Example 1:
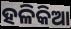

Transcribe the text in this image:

ହଳିକିଆ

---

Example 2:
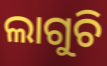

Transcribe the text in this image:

ଲାଗୁଚି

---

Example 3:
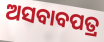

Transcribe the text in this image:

ଅସବାବପତ୍ର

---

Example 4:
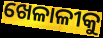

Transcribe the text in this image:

ଖେଳାଳୀକୁ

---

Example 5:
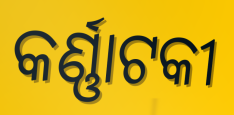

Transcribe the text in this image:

କର୍ଣ୍ଣାଟକୀ